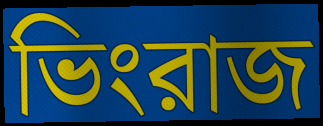
ভিংরাজ